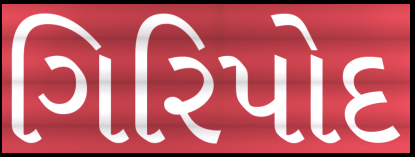
ગિરિપોદ